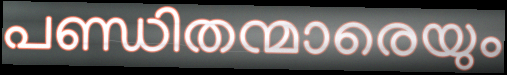
പണ്ഡിതന്മാരെയും